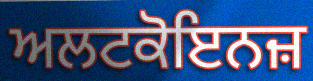
ਅਲਟਕੋਇਨਜ਼